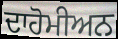
ਦਾਹੋਮੀਅਨ